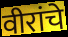
वीरांचे